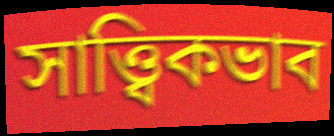
সাত্ত্বিকভাব